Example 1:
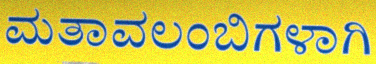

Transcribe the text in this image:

ಮತಾವಲಂಬಿಗಳಾಗಿ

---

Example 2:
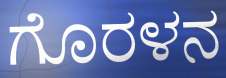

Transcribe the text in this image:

ಗೊರಳನ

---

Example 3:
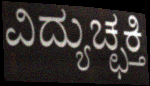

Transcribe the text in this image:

ವಿದ್ಯುಚ್ಛಕ್ತಿ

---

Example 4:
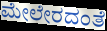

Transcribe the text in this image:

ಮೇಲೇರದಂತೆ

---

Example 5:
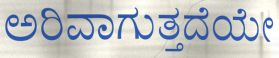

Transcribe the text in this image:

ಅರಿವಾಗುತ್ತದೆಯೇ